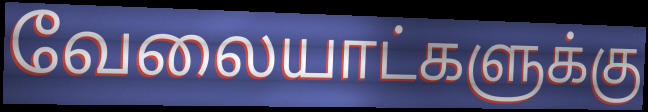
வேலையாட்களுக்கு